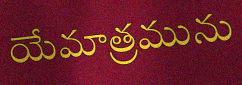
యేమాత్రమును